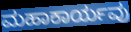
ಮಹಾಕಾರ್ಯವು